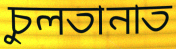
চুলতানাত